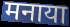
मनाया